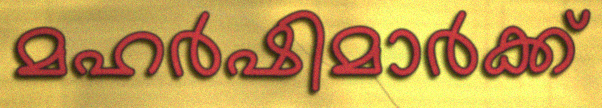
മഹർഷിമാർക്ക്